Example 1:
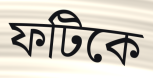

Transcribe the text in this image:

ফটিকে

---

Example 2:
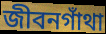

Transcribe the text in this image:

জীবনগাঁথা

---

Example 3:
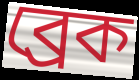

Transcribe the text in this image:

ব্রেক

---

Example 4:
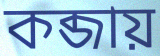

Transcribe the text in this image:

কব্জায়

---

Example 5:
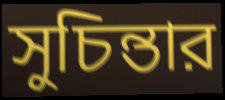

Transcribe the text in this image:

সুচিন্তার